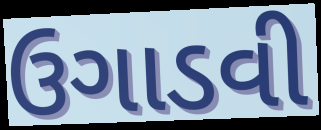
ઉગાડવી